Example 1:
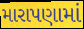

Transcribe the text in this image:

મારાપણામાં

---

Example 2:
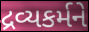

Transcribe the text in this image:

દ્રવ્યકર્મને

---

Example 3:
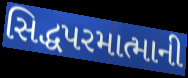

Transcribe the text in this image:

સિદ્ધપરમાત્માની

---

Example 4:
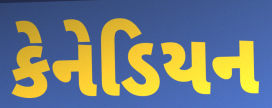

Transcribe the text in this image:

કેનેડિયન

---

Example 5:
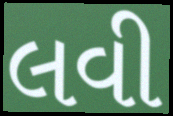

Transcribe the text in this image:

લવી